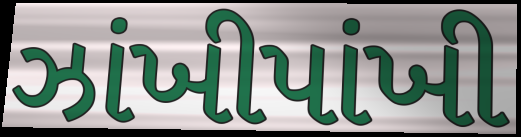
ઝાંખીપાંખી